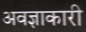
अवज्ञाकारी